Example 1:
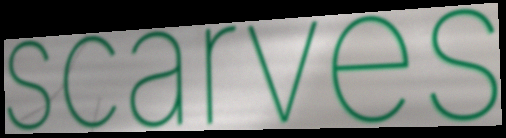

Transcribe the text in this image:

scarves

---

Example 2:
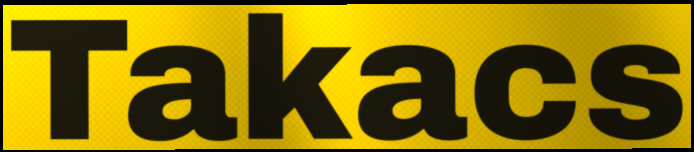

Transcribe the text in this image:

Takacs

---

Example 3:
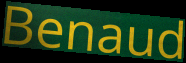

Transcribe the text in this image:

Benaud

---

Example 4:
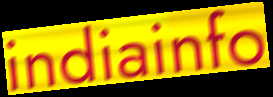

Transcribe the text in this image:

indiainfo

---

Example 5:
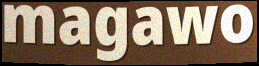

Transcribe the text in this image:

magawo